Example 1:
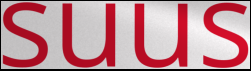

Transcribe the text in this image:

suus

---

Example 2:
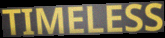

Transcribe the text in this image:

TIMELESS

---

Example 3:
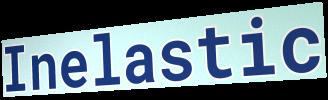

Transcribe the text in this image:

Inelastic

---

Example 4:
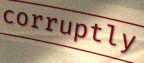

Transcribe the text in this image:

corruptly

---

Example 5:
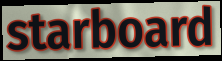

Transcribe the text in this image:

starboard